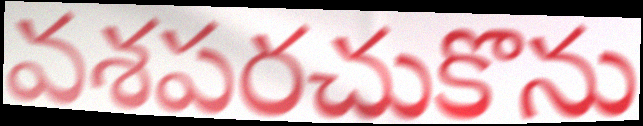
వశపరచుకొను